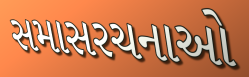
સમાસરચનાઓ